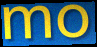
mo